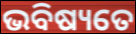
ଭବିଷ୍ୟତେ